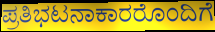
ಪ್ರತಿಭಟನಾಕಾರರೊಂದಿಗೆ